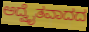
ಅದ್ವೈತವಾದದ